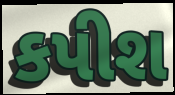
કપીશ